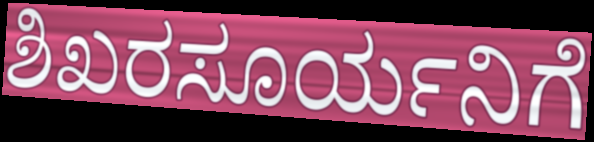
ಶಿಖರಸೂರ್ಯನಿಗೆ